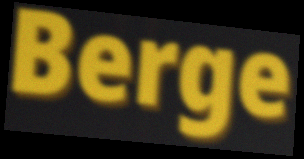
Berge